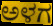
ಅಳಗ